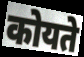
कोयते